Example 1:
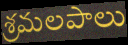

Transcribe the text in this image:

శ్రమలపాలు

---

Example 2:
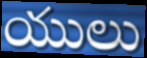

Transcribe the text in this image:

యులు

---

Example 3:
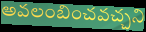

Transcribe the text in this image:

అవలంబించవచ్చని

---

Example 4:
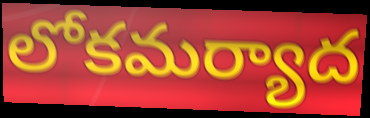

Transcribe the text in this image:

లోకమర్యాద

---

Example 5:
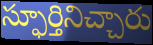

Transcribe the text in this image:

స్ఫూర్తినిచ్చారు